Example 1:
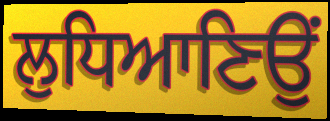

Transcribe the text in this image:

ਲੁਧਿਆਣਿਉਂ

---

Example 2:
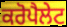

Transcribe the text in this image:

ਕਰੋਪੈਲੇਟ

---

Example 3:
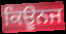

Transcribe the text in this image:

ਕਿਊਨਜ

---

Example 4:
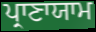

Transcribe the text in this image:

ਪ੍ਰਾਣਾਯਾਮ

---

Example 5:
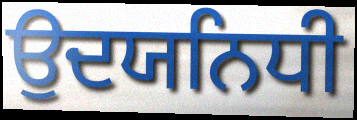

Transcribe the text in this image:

ਉਦਯਨਿਧੀ